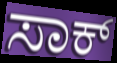
ಸಾಕ್